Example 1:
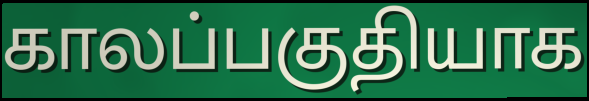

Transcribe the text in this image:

காலப்பகுதியாக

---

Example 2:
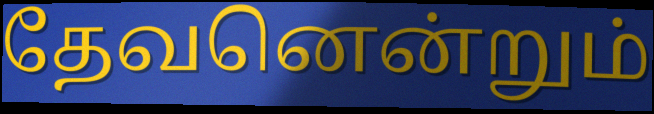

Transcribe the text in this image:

தேவனென்றும்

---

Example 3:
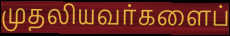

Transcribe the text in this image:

முதலியவர்களைப்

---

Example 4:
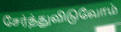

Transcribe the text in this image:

சேர்த்துவிடுவோம்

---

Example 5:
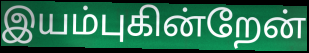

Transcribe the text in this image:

இயம்புகின்றேன்